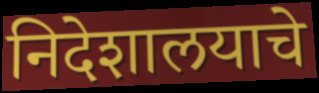
निदेशालयाचे